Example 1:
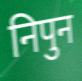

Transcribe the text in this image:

निपुन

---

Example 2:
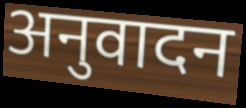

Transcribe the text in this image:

अनुवादन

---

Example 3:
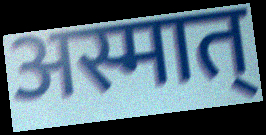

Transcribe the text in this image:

अस्मात्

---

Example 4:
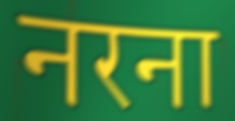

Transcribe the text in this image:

नरना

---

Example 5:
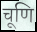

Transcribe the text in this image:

चूणि